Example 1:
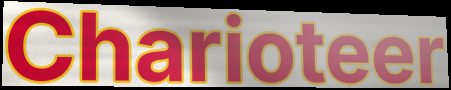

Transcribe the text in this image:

Charioteer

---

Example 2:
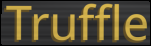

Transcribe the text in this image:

Truffle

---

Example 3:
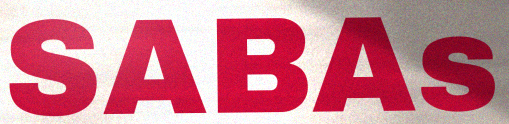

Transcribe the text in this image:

SABAs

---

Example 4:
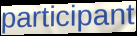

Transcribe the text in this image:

participant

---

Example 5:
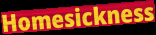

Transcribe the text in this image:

Homesickness